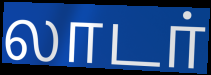
லாடர்